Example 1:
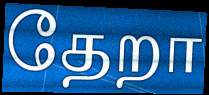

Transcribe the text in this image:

தேறா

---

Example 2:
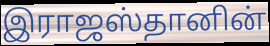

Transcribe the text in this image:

இராஜஸ்தானின்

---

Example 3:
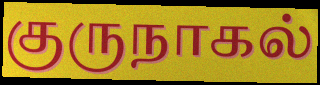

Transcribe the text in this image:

குருநாகல்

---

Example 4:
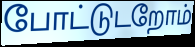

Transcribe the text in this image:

போட்டுடறோம்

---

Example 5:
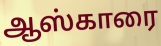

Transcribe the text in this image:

ஆஸ்காரை